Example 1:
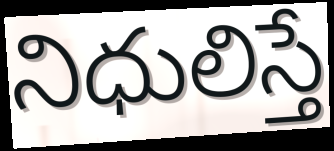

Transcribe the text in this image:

నిధులిస్తే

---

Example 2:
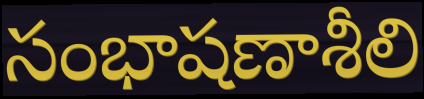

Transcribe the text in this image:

సంభాషణాశీలి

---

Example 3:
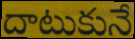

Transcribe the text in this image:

దాటుకునే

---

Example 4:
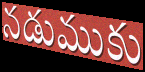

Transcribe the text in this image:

నడుముకు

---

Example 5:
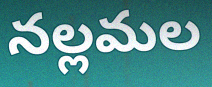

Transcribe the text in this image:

నల్లమల